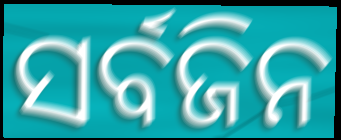
ସର୍ବଜିନ